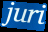
juri